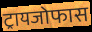
ट्रायजोफास